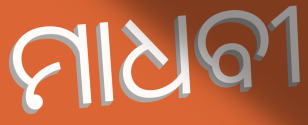
ମାଧବୀ